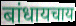
बांधायचाय